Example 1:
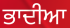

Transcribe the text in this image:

ਭਾਦੀਆ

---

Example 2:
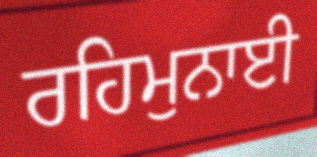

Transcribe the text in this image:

ਰਹਿਮੁਨਾਈ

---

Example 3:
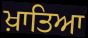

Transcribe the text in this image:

ਖ਼ਾਤਿਆ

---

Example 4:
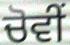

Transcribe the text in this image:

ਚੋਵੀਂ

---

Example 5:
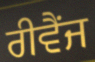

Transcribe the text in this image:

ਰੀਵੈਂਜ